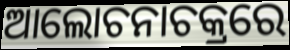
ଆଲୋଚନାଚକ୍ରରେ